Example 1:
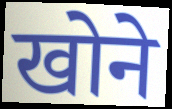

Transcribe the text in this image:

खोने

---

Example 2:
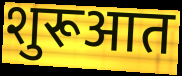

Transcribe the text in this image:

शुरूआत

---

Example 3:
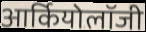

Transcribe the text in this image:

आर्कियोलॉजी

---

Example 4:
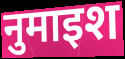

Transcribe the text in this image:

नुमाइश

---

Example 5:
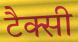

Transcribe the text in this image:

टैक्सी